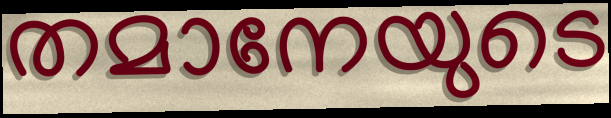
തമാനേയുടെ